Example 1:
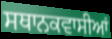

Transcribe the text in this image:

ਸਥਾਨਕਵਾਸੀਆਂ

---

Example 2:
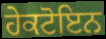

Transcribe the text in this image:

ਹੇਕਟੋਇਨ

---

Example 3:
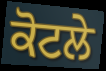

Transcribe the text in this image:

ਕੋਟਲੇ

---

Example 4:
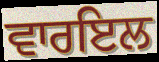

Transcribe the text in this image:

ਵਾਰਇਲ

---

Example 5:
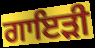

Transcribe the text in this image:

ਗਾਇੜੀ